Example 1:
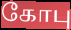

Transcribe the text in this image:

கோபு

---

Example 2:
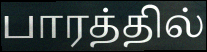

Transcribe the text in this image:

பாரத்தில்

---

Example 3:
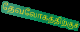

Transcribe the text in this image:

தேவலோகத்திற்குச்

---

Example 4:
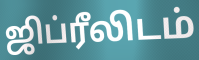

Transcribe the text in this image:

ஜிப்ரீலிடம்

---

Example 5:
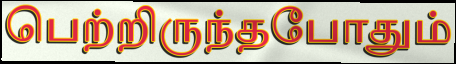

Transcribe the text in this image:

பெற்றிருந்தபோதும்